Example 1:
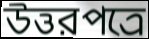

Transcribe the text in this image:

উত্তরপত্রে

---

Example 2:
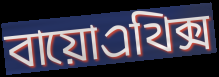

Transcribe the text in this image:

বায়োএথিক্স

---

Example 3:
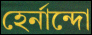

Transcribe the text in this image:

হের্নান্দো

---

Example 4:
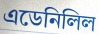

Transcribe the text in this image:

এডেনিলিল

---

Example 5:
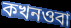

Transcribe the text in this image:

কখনওবা